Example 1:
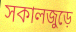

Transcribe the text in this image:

সকালজুড়ে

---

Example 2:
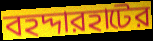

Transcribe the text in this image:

বহদ্দারহাটের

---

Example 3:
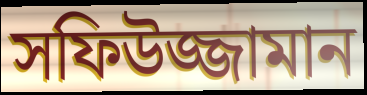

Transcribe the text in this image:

সফিউজ্জামান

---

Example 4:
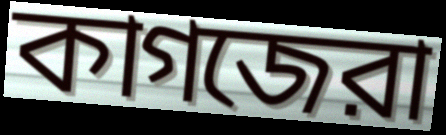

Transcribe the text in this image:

কাগজেরা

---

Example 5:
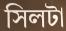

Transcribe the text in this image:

সিলটা